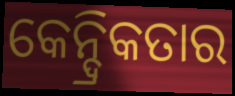
କେନ୍ଦ୍ରିକତାର